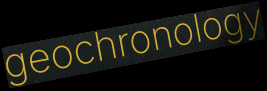
geochronology